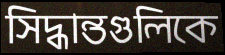
সিদ্ধান্তগুলিকে